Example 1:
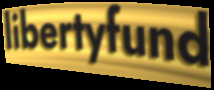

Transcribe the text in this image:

libertyfund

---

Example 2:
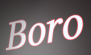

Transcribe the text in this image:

Boro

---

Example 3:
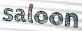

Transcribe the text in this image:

saloon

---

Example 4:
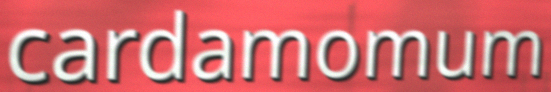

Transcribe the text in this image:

cardamomum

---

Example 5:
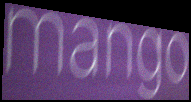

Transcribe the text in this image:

mango